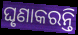
ଘୃଣାକରନ୍ତି